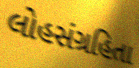
લોહસંગ્રહિતા